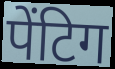
पेंटिग